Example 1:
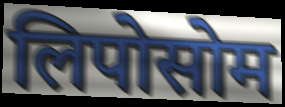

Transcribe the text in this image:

लिपोसोम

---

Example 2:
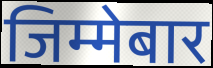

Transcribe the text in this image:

जिम्मेबार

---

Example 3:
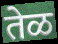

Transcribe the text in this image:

तेळ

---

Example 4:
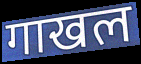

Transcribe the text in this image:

गाखल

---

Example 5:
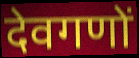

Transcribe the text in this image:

देवगणों